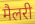
मैलरी